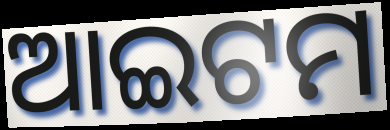
ଆଇଟମ